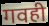
गवही